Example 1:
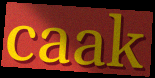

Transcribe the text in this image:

caak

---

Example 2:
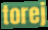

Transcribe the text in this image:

torej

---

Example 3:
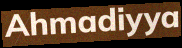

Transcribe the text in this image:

Ahmadiyya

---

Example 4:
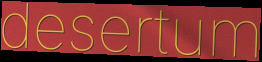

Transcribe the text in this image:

desertum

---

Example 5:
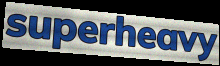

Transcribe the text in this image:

superheavy